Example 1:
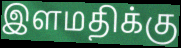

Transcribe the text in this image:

இளமதிக்கு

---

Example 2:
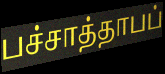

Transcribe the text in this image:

பச்சாத்தாபப்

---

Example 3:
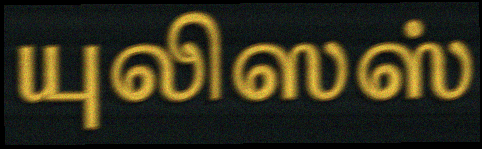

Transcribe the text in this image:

யுலிஸஸ்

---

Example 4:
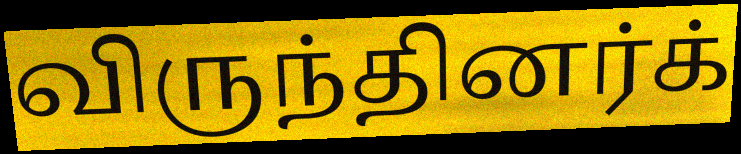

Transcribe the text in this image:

விருந்தினர்க்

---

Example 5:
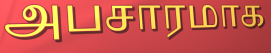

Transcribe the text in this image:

அபசாரமாக